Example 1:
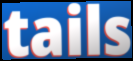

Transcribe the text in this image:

tails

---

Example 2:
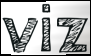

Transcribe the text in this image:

viz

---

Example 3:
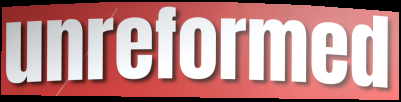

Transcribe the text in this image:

unreformed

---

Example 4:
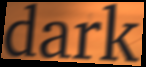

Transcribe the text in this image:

dark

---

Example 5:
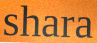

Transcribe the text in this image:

shara